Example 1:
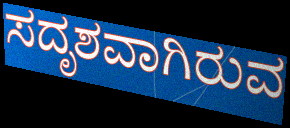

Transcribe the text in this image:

ಸದೃಶವಾಗಿರುವ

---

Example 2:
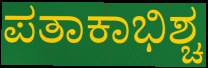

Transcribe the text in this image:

ಪತಾಕಾಭಿಶ್ಚ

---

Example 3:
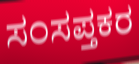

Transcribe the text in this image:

ಸಂಸಪ್ತಕರ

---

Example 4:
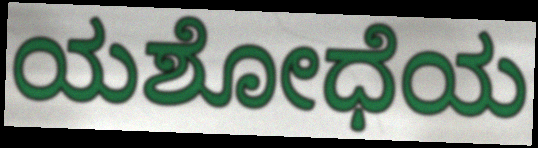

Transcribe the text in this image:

ಯಶೋಧೆಯ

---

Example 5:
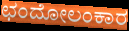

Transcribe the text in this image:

ಛಂದೋಲಂಕಾರ